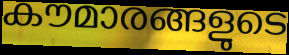
കൗമാരങ്ങളുടെ